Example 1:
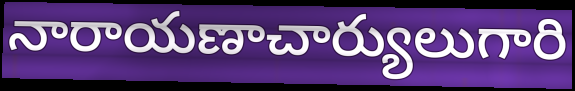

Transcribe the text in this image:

నారాయణాచార్యులుగారి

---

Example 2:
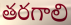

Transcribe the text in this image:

తరగాలి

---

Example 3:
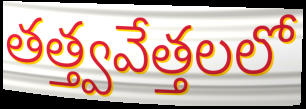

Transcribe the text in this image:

తత్త్వవేత్తలలో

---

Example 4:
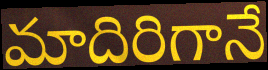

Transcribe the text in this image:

మాదిరిగానే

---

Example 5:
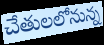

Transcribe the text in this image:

చేతులలోనున్న